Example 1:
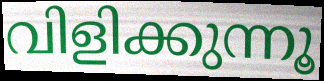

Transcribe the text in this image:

വിളിക്കുന്നൂ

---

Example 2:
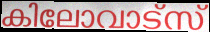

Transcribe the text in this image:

കിലോവാട്സ്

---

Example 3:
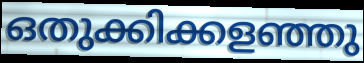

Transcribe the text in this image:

ഒതുക്കിക്കളഞ്ഞു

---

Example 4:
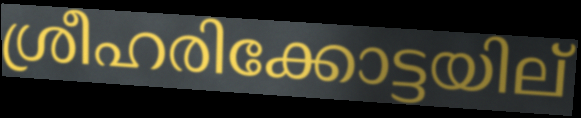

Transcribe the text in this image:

ശ്രീഹരിക്കോട്ടയില്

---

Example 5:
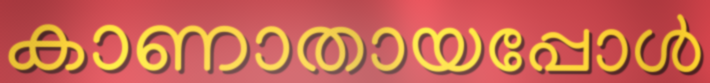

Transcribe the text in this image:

കാണാതായപ്പോൾ